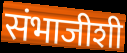
संभाजीशी